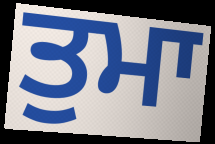
ਤੁਮਾ